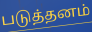
படுத்தனம்